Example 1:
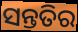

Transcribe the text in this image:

ସନ୍ତତିର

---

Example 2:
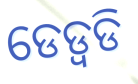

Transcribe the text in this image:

ଡେଡ୍ବଡି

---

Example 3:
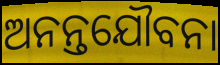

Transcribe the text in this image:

ଅନନ୍ତଯୌବନା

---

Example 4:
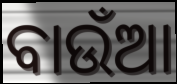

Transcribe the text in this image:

ବାଉଁଆ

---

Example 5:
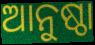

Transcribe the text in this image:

ଆନୁଷ୍ଠା